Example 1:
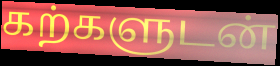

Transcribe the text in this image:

கற்களுடன்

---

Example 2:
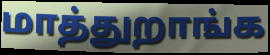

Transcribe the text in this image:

மாத்துறாங்க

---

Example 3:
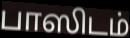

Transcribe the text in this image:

பாஸிடம்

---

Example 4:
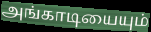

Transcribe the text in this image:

அங்காடியையும்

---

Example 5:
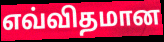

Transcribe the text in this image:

எவ்விதமான